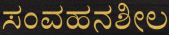
ಸಂವಹನಶೀಲ